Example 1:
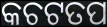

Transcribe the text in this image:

କଚଟତପ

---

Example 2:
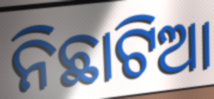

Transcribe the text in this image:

ନିଛାଟିଆ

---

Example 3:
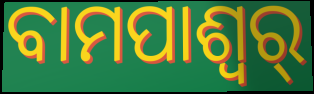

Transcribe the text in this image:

ବାମପାଶ୍ୱର୍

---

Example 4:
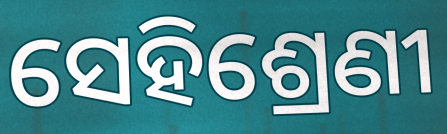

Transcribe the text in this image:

ସେହିଶ୍ରେଣୀ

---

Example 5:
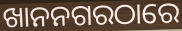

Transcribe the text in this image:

ଖାନନଗରଠାରେ